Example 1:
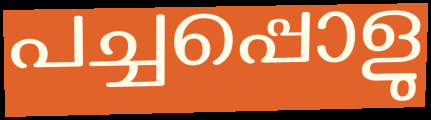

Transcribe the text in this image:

പച്ചപ്പൊളു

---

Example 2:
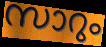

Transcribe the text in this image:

സാറും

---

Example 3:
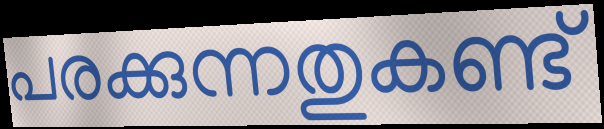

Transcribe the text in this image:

പരക്കുന്നതുകണ്ട്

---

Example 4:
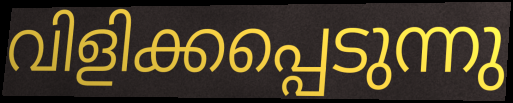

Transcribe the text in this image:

വിളിക്കപ്പെടുന്നു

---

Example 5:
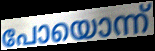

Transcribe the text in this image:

പോയൊന്ന്